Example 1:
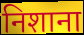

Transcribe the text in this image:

निशाना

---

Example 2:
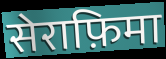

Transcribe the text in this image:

सेराफ़िमा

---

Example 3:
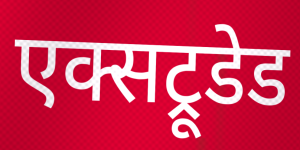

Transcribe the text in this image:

एक्सट्रूडेड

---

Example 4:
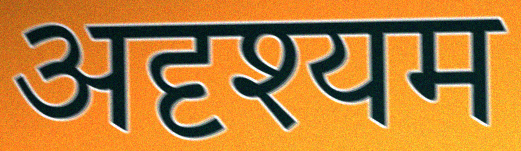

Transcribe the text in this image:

अदृश्यम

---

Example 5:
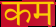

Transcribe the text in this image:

कम